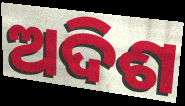
ଅଦିଶ